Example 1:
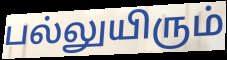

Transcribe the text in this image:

பல்லுயிரும்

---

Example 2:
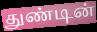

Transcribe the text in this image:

துண்டின்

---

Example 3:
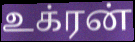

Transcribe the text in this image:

உக்ரன்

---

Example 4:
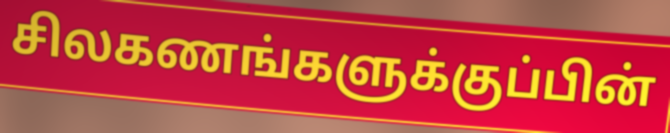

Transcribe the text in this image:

சிலகணங்களுக்குப்பின்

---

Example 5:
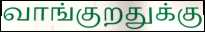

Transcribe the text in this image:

வாங்குறதுக்கு